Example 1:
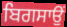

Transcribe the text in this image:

ਬਿਗਸਾਉਂ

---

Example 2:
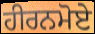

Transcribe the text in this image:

ਹੀਰਨਮੋਏ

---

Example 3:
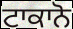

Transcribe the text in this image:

ਟਾਕਾਨੋ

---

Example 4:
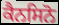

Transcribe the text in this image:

ਕੈਨਸਿਨੋ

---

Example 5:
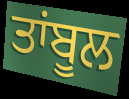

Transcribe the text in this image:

ਤਾਂਬੂਲ